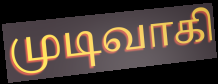
முடிவாகி